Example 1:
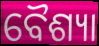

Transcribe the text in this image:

ବୈଶ୍ଯା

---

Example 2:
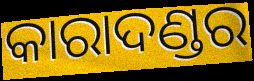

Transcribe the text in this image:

କାରାଦଣ୍ଡର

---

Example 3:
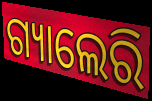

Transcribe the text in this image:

ଗ୍ୟାଲେରି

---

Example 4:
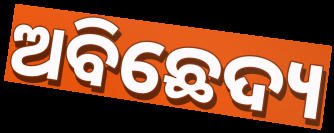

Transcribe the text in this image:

ଅବିଛେଦ୍ୟ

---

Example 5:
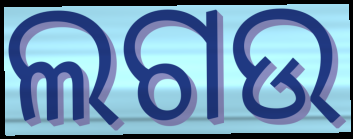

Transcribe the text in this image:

ଲଗଉ